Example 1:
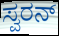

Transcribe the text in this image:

ಸ್ವರನ್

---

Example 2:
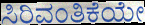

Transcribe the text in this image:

ಸಿರಿವಂತಿಕೆಯೇ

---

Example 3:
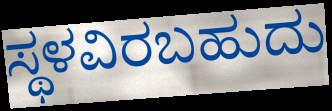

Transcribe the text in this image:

ಸ್ಥಳವಿರಬಹುದು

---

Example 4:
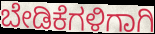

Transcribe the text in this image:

ಬೇಡಿಕೆಗಳಿಗಾಗಿ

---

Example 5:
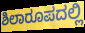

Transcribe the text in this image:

ಶಿಲಾರೂಪದಲ್ಲಿ